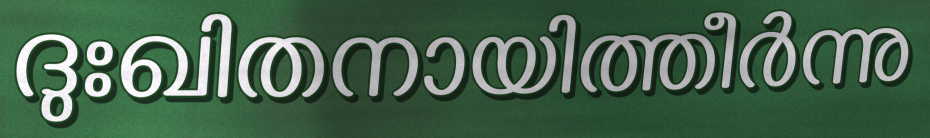
ദുഃഖിതനായിത്തീർന്നു